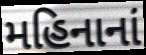
મહિનાનાં